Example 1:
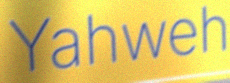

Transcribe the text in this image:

Yahweh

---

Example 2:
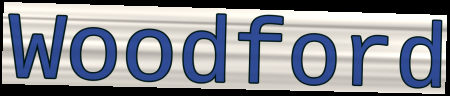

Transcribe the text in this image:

Woodford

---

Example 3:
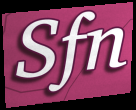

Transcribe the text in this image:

Sfn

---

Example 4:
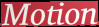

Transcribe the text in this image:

Motion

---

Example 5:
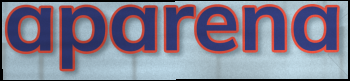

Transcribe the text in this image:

aparena